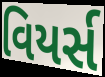
વિયર્સ